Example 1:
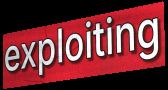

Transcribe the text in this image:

exploiting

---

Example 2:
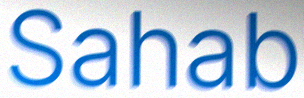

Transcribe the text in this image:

Sahab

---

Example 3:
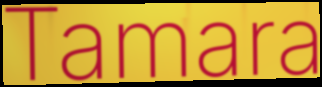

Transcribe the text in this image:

Tamara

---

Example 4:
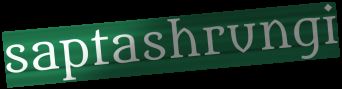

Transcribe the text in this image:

saptashrungi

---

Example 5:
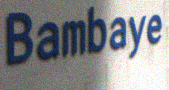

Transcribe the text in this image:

Bambaye